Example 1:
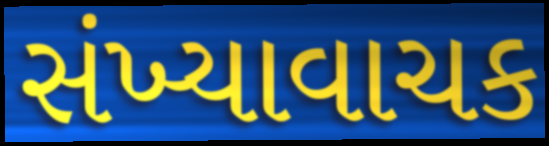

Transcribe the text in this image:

સંખ્યાવાચક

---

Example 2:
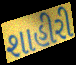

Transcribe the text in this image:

શાહીરી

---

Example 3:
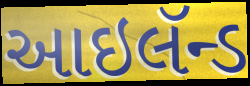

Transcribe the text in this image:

આઇલૅન્ડ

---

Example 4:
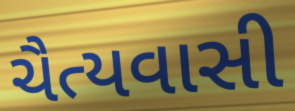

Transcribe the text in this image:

ચૈત્યવાસી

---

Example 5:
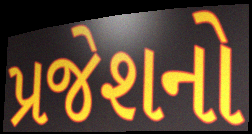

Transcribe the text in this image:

પ્રજેશનો